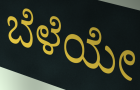
ಬೆಳೆಯೇ